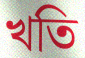
খতি